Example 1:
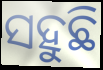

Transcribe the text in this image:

ସହୁଛି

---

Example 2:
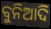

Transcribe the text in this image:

ବୁନିଆଦି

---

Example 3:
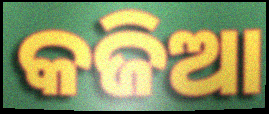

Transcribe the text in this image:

କଜିଆ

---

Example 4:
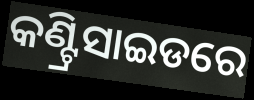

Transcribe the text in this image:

କଣ୍ଟ୍ରିସାଇଡରେ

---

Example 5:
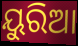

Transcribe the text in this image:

ୟୁରିଆ